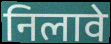
निलावे